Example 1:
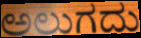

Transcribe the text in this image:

ಅಲುಗದು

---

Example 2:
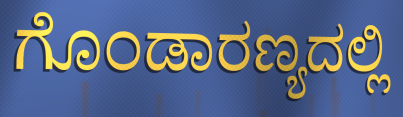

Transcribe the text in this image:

ಗೊಂಡಾರಣ್ಯದಲ್ಲಿ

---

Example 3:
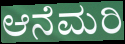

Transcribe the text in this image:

ಆನೆಮರಿ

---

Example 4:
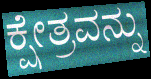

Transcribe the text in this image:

ಕ್ಷೇತ್ರವನ್ನು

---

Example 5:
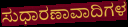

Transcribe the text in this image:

ಸುಧಾರಣಾವಾದಿಗಳ